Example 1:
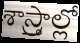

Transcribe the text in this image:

శాస్ర్తాల్లో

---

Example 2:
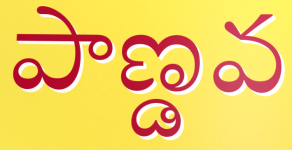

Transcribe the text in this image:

పాణ్డవ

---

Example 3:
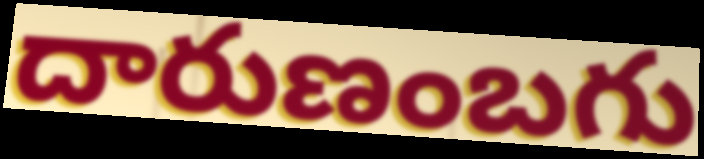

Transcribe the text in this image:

దారుణంబగు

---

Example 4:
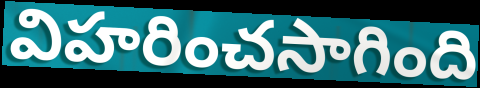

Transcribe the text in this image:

విహరించసాగింది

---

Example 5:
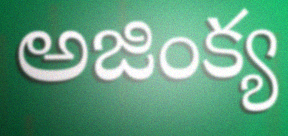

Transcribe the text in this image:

అజింక్య